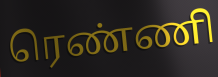
ரெண்ணி